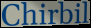
Chirbil